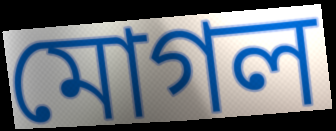
মোগল